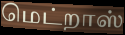
மெட்றாஸ்